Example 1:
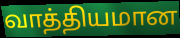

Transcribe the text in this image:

வாத்தியமான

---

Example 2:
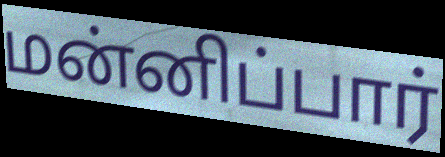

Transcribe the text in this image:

மன்னிப்பார்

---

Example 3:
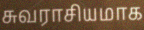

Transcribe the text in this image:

சுவராசியமாக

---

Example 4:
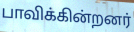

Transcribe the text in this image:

பாவிக்கின்றனர்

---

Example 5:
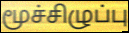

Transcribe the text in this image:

மூச்சிழுப்பு